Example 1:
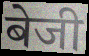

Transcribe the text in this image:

बेजी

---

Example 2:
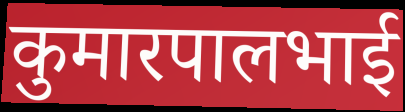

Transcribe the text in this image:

कुमारपालभाई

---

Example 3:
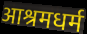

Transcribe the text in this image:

आश्रमधर्म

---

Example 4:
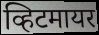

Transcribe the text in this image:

व्हिटमायर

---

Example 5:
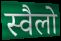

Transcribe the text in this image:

स्वैलो